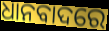
ଧାନବାଦରେ